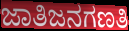
ಜಾತಿಜನಗಣತಿ